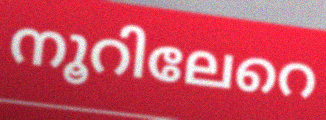
നൂറിലേറെ